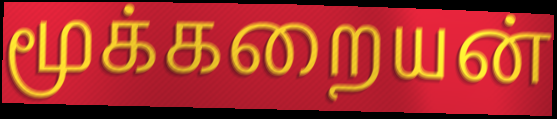
மூக்கறையன்